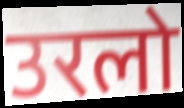
उरलो